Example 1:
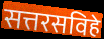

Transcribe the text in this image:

सत्तरसविहे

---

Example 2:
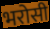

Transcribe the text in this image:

भरोसी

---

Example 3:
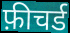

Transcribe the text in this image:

फ़ीचर्ड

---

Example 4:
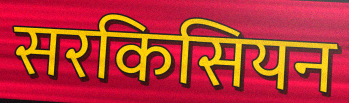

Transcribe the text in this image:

सरकिसियन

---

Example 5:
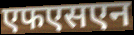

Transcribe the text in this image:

एफएसएन